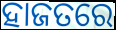
ହାଜତରେ